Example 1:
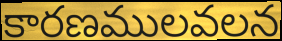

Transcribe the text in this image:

కారణములవలన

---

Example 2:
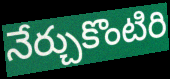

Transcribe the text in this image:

నేర్చుకొంటిరి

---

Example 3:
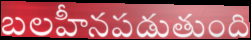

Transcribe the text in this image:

బలహీనపడుతుంది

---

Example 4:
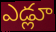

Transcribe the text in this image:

ఎడ్లూ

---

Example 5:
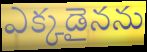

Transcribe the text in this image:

ఎక్కడైనను